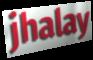
jhalay